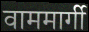
वाममार्गी